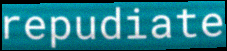
repudiate